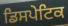
ਡਿਸਪੇਟਿਕ